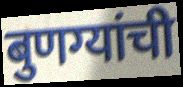
बुणग्यांची